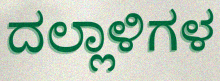
ದಲ್ಲಾಳಿಗಳ